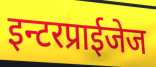
इन्टरप्राईजेज